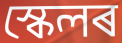
স্কেলৰ